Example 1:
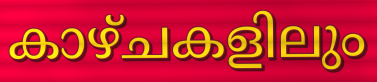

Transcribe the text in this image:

കാഴ്ചകളിലും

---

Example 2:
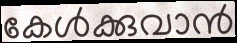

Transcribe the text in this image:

കേൾക്കുവാൻ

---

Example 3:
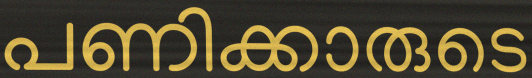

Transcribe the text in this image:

പണിക്കാരുടെ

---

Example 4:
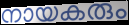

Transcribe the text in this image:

നായകരും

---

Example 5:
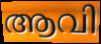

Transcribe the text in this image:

ആവി